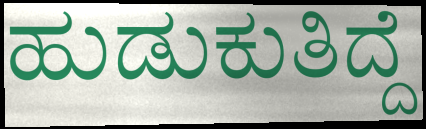
ಹುಡುಕುತಿದ್ದೆ